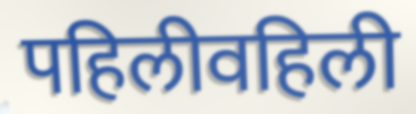
पहिलीवहिली